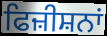
ਫਿਜ਼ੀਸ਼ਨਾਂ